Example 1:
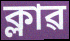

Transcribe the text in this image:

ক্লাৱ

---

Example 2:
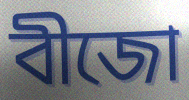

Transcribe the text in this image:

বীজো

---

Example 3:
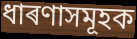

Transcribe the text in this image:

ধাৰণাসমূহক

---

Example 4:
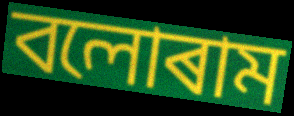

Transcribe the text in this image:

বলোৰাম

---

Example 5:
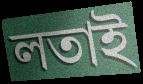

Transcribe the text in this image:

লতাই